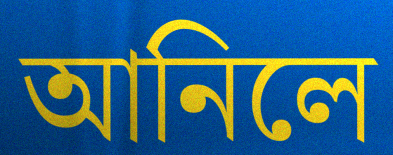
আনিলে